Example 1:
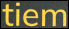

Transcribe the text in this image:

tiem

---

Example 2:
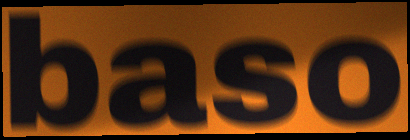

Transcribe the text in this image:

baso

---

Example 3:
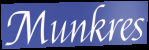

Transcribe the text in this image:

Munkres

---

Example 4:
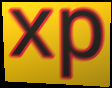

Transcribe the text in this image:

xp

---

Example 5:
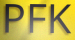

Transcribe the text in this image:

PFK